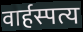
वार्हस्पत्य